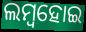
ଲମ୍ୱହୋଇ